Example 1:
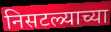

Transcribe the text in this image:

निसटल्याच्या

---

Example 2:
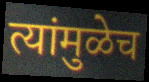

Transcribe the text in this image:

त्यांमुळेच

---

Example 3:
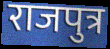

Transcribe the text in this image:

राजपुत्र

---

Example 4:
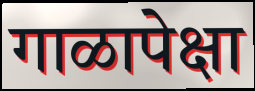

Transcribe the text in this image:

गाळापेक्षा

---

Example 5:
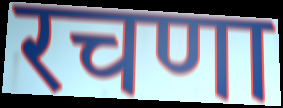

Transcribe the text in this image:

रचणा